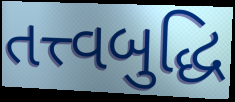
તત્ત્વબુદ્ધિ